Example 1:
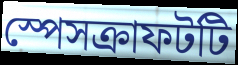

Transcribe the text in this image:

স্পেসক্রাফটটি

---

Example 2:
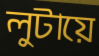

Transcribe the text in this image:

লুটায়ে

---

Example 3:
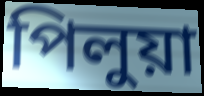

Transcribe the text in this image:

পিলুয়া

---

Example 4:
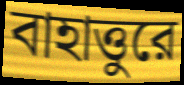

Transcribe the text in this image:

বাহাত্তুরে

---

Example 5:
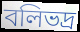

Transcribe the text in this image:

বলিভদ্র